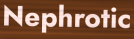
Nephrotic